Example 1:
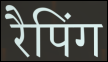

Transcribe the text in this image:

रैपिंग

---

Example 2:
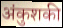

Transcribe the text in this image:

अंकुशकी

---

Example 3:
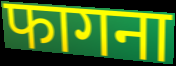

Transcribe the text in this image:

फागना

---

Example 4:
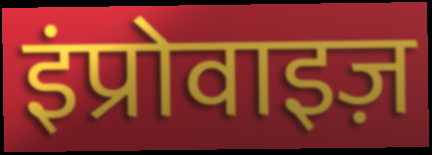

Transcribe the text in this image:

इंप्रोवाइज़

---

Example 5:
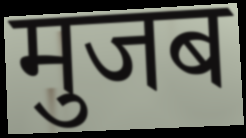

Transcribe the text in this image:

मुजब